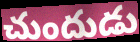
చుందుడు